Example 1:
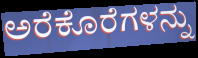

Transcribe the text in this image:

ಅರೆಕೊರೆಗಳನ್ನು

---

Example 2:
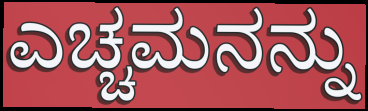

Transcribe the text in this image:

ಎಚ್ಚಮನನ್ನು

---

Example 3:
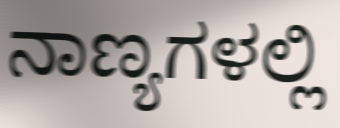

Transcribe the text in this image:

ನಾಣ್ಯಗಳಲ್ಲಿ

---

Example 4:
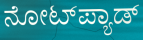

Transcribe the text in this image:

ನೋಟ್‌ಪ್ಯಾಡ್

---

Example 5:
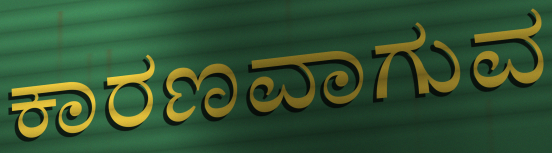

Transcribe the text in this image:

ಕಾರಣವಾಗುವ